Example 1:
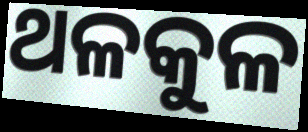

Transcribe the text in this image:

ଥଳକୁଳ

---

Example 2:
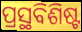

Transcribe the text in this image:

ପ୍ରସ୍ଥବିଶିଷ୍ଟ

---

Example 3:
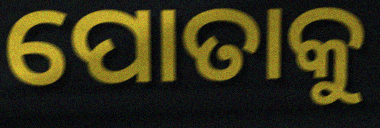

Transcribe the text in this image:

ପୋତାକୁ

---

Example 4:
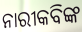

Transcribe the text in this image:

ନାରୀକବିଙ୍କ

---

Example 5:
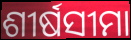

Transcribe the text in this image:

ଶୀର୍ଷସୀମା